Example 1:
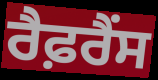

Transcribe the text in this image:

ਰੈਫ਼ਰੈਂਸ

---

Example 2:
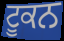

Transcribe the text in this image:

ਟੂਕਨ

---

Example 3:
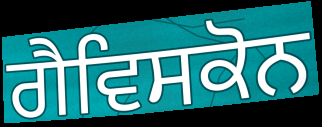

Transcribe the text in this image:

ਗੈਵਿਸਕੋਨ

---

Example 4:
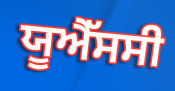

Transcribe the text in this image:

ਯੂਐੱਸਸੀ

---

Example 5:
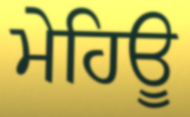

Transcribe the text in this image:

ਮੇਹਿਊ